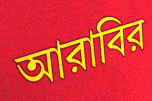
আরাবির